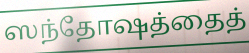
ஸந்தோஷத்தைத்